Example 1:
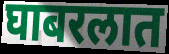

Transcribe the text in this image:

घाबरलात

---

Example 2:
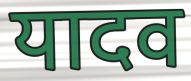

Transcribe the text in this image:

यादव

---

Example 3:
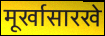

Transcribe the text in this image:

मूर्खासारखे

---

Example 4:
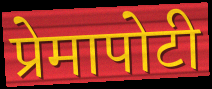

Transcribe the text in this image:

प्रेमापोटी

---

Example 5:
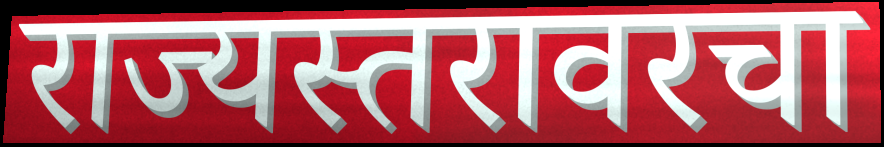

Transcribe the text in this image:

राज्यस्तरावरचा